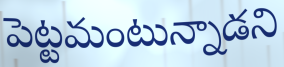
పెట్టమంటున్నాడని